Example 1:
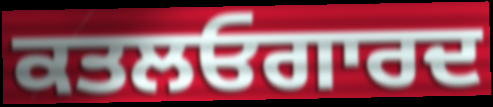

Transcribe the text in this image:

ਕਤਲਓਗਾਰਦ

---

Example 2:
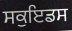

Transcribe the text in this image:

ਸਕੁਇਡਸ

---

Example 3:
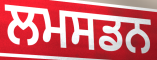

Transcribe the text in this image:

ਲਮਸਡਨ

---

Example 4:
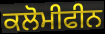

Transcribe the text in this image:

ਕਲੋਮੀਫੀਨ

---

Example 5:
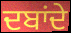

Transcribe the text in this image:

ਦਬਾਂਦੇ